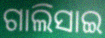
ଗାଲିସାଇ